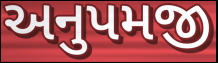
અનુપમજી